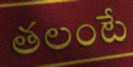
తలంటే